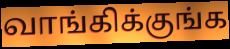
வாங்கிக்குங்க